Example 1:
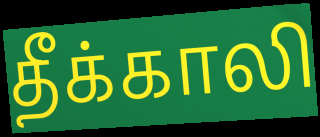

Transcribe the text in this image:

தீக்காலி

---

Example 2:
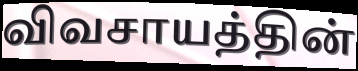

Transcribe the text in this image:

விவசாயத்தின்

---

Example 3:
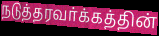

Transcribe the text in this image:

நடுத்தரவர்க்கத்தின்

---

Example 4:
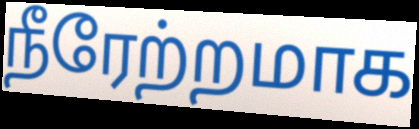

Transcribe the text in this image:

நீரேற்றமாக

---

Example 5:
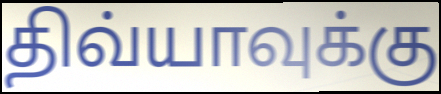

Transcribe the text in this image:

திவ்யாவுக்கு